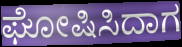
ಘೋಷಿಸಿದಾಗ